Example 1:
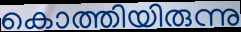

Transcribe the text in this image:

കൊത്തിയിരുന്നു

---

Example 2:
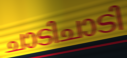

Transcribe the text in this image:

ചാടിചാടി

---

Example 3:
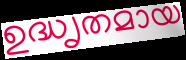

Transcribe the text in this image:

ഉദ്ധൃതമായ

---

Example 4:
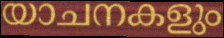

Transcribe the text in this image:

യാചനകളും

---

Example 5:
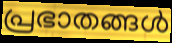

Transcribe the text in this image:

പ്രഭാതങ്ങൾ